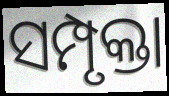
ସମ୍ପୃକ୍ତା